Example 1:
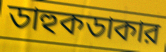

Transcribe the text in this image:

ডাহুকডাকার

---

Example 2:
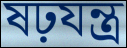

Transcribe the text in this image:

ষঢ়যন্ত্র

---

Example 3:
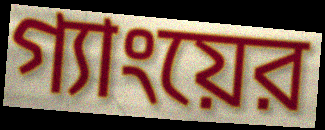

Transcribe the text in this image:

গ্যাংয়ের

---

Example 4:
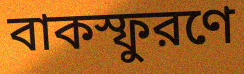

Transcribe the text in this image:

বাকস্ফুরণে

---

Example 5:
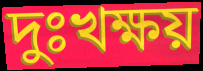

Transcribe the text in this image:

দুঃখক্ষয়